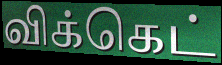
விக்கெட்